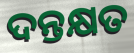
ଦନ୍ତକ୍ଷତ